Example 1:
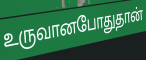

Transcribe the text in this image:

உருவானபோதுதான்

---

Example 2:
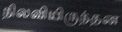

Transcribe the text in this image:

நிலவியிருந்தன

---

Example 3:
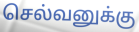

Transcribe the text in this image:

செல்வனுக்கு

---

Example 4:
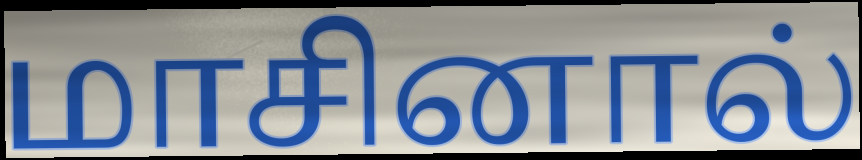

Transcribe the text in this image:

மாசினால்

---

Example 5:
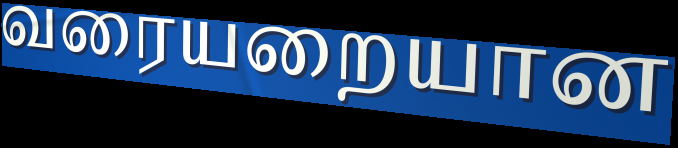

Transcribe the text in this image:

வரையறையான